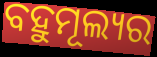
ବହୁମୂଲ୍ୟର